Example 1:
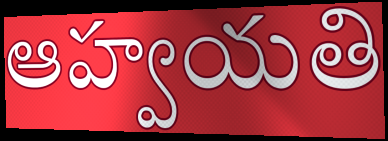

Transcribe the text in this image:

ఆహ్వయతి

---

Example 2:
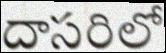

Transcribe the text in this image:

దాసరిలో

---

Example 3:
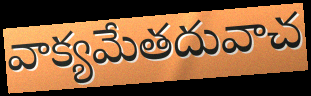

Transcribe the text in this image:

వాక్యమేతదువాచ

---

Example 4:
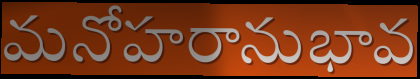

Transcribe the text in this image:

మనోహరానుభావ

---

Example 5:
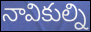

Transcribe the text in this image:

నావికుల్ని